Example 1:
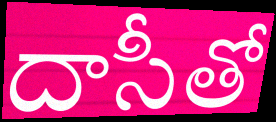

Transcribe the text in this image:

దాసీతో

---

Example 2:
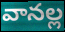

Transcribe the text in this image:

వానల్ల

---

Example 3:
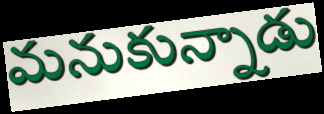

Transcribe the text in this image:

మనుకున్నాడు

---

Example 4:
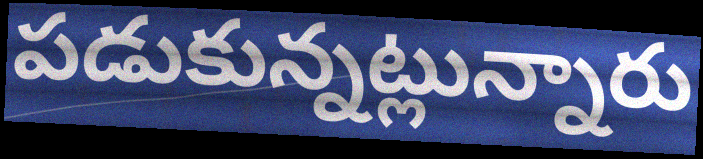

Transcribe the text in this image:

పడుకున్నట్లున్నారు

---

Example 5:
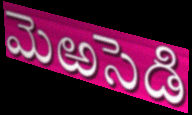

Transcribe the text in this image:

మెఱసెడి